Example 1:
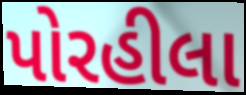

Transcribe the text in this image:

પોરહીલા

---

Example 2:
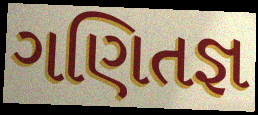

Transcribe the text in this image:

ગણિતજ્ઞ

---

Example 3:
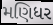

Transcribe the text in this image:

મણિધર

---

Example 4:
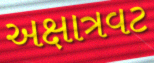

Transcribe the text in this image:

અક્ષાત્રવટ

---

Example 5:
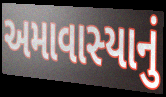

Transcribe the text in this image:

અમાવાસ્યાનું